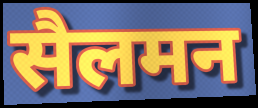
सैलमन